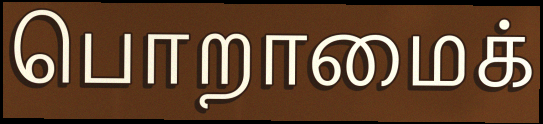
பொறாமைக்